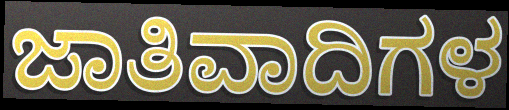
ಜಾತಿವಾದಿಗಳ